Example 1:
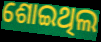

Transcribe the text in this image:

ଶୋଇଥିଲ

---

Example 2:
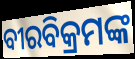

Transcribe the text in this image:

ବୀରବିକ୍ରମଙ୍କ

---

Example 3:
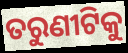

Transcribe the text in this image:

ତରୁଣୀଟିକୁ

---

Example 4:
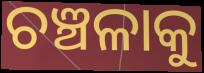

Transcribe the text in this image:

ଚଞ୍ଚଳାକୁ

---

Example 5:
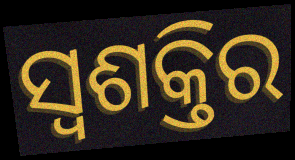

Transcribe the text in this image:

ସ୍ଵଶକ୍ତିର